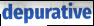
depurative